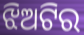
ଝିଅଟିର